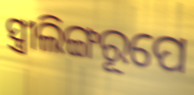
ସ୍ତ୍ରୀଲିଙ୍ଗରୂପେ